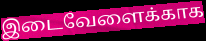
இடைவேளைக்காக